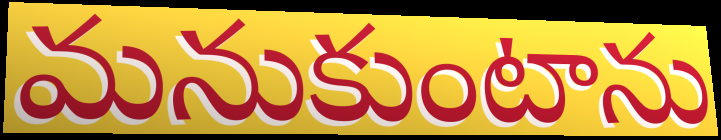
మనుకుంటాను